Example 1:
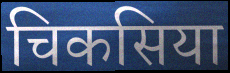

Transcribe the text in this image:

चिकसिया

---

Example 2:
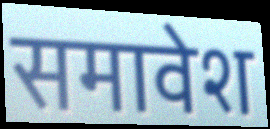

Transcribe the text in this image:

समावेश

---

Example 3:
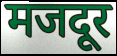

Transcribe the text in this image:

मजदूर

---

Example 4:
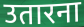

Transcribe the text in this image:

उतारना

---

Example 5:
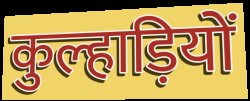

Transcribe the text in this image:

कुल्हाड़ियों